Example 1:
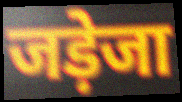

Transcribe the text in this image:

जड़ेजा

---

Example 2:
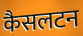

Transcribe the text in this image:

कैसलटन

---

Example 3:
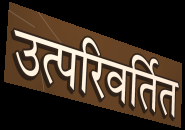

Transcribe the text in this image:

उत्परिवर्तित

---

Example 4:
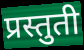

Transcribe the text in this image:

प्रस्तुती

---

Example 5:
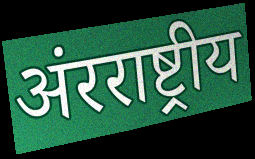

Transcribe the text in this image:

अंरराष्ट्रीय